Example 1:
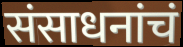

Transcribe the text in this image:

संसाधनांचं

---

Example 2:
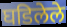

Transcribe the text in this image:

घडिलेले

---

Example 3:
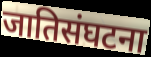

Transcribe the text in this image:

जातिसंघटना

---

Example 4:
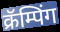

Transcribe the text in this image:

क्रॅम्पिंग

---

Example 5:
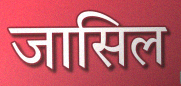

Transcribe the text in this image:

जासिल